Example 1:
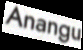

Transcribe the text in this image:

Anangu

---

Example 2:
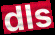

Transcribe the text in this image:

dls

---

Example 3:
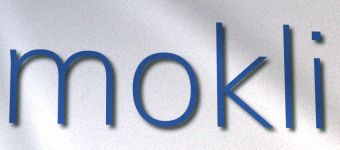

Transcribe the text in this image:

mokli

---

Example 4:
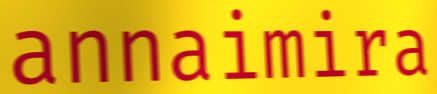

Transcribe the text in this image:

annaimira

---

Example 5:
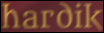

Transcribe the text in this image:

hardik